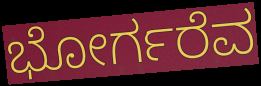
ಭೋರ್ಗರೆವ